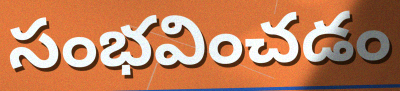
సంభవించడం